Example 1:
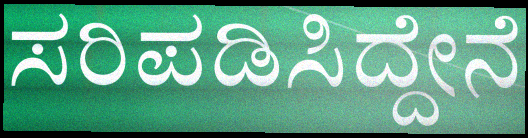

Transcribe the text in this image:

ಸರಿಪಡಿಸಿದ್ದೇನೆ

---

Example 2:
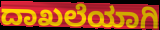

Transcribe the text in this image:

ದಾಖಲೆಯಾಗಿ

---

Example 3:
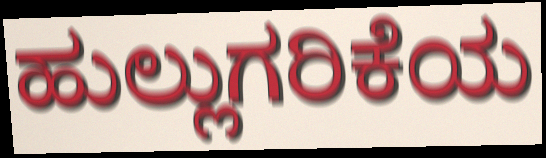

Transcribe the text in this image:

ಹುಲ್ಲುಗರಿಕೆಯ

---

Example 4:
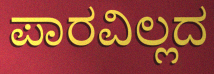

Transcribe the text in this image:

ಪಾರವಿಲ್ಲದ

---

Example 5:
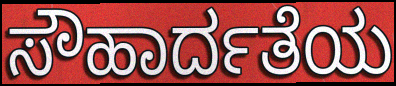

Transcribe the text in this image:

ಸೌಹಾರ್ದತೆಯ